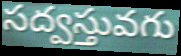
సద్వస్తువగు